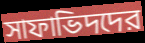
সাফাভিদদের